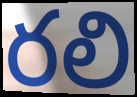
రలి